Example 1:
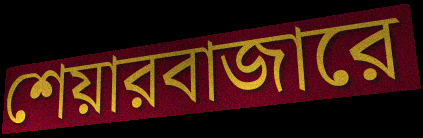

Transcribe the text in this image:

শেয়ারবাজারে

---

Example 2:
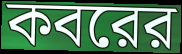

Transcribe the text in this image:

কবরের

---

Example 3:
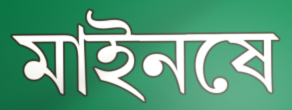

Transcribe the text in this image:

মাইনষে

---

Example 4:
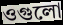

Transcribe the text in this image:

ওগুলো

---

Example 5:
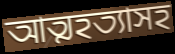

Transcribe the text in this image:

আত্মহত্যাসহ